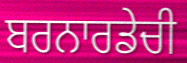
ਬਰਨਾਰਡੇਚੀ